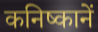
कनिष्कानें